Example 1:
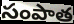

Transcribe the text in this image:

సంపాత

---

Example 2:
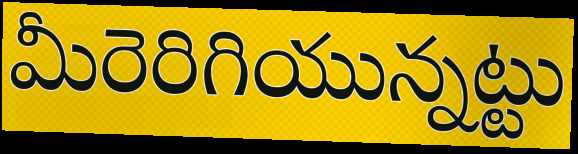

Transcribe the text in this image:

మీరెరిగియున్నట్టు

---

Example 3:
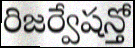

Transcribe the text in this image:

రిజర్వేషన్తో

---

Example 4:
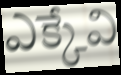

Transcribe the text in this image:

ఎక్కేవి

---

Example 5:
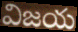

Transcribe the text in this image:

విజయ